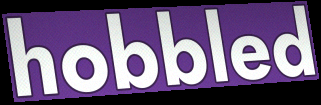
hobbled